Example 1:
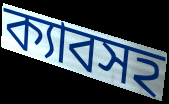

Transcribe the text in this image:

ক্যাবসহ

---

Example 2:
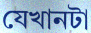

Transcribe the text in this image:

যেখানটা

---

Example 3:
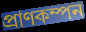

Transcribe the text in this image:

প্রাণকম্পন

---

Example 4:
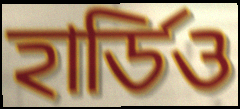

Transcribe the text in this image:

হার্ডিও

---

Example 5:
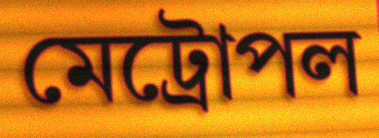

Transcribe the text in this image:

মেট্রোপল